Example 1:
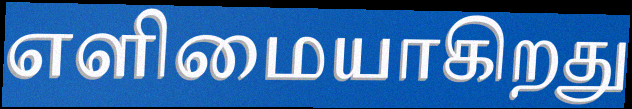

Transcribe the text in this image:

எளிமையாகிறது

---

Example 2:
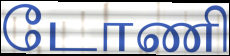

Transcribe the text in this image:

டோணி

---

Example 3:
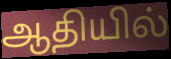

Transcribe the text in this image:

ஆதியில்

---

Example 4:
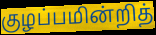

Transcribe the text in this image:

குழப்பமின்றித்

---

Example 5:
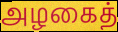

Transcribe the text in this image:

அழகைத்